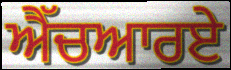
ਐੱਚਆਰਏ